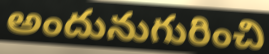
అందునుగురించి